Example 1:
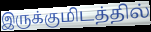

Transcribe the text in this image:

இருக்குமிடத்தில்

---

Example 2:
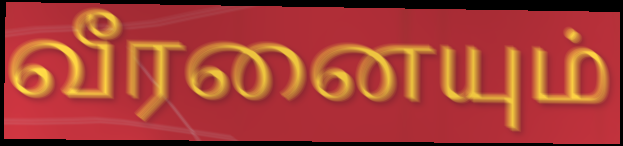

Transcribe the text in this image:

வீரனையும்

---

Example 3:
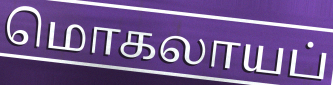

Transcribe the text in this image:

மொகலாயப்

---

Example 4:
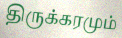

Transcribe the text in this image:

திருக்கரமும்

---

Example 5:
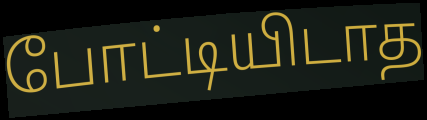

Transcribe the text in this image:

போட்டியிடாத